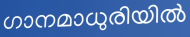
ഗാനമാധുരിയിൽ